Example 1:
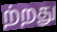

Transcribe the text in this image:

ற்றது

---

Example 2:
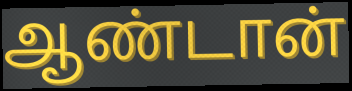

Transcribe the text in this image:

ஆண்டான்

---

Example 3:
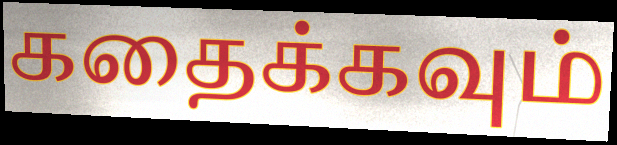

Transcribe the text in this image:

கதைக்கவும்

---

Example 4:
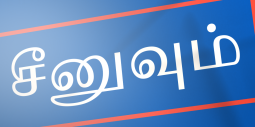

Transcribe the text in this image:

சீனுவும்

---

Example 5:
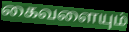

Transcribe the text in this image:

கைவளையும்